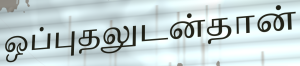
ஒப்புதலுடன்தான்